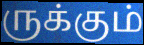
ருக்கும்